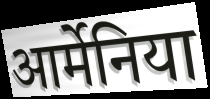
आर्मेनिया